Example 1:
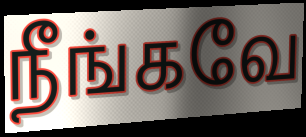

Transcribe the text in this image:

நீங்கவே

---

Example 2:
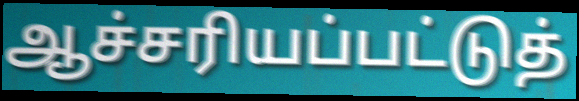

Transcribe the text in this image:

ஆச்சரியப்பட்டுத்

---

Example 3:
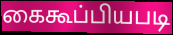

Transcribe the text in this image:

கைகூப்பியபடி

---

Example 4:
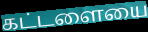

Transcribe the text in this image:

கட்டளையை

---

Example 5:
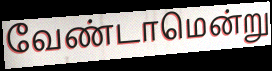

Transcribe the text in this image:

வேண்டாமென்று